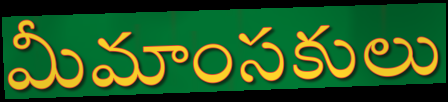
మీమాంసకులు